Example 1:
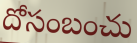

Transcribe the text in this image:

దోసంబంచు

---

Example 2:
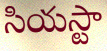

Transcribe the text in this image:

సియస్టా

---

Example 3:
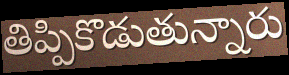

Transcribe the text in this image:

తిప్పికొడుతున్నారు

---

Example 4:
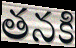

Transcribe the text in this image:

తనకి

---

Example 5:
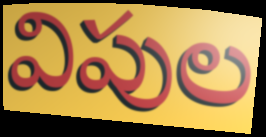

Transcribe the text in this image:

విపుల